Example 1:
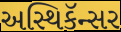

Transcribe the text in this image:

અસ્થિકૅન્સર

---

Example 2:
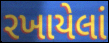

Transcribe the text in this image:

રખાયેલાં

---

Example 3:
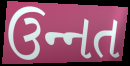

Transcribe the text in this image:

ઉન્‍નત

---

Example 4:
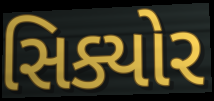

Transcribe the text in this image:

સિક્યોર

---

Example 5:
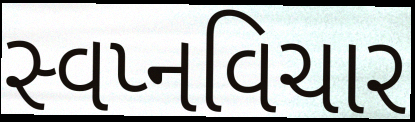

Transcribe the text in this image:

સ્વપ્નવિચાર